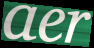
aer